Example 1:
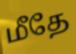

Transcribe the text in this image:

மீதே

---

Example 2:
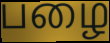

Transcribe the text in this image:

பழை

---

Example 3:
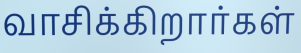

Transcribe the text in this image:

வாசிக்கிறார்கள்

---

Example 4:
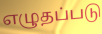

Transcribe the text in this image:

எழுதப்படு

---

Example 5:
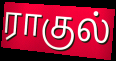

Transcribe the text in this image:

ராகுல்